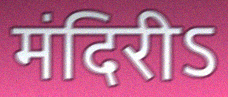
मंदिरीऽ